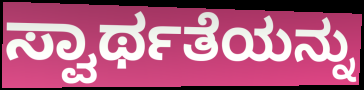
ಸ್ವಾರ್ಥತೆಯನ್ನು